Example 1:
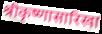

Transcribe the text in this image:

श्रीकृष्णासारिखा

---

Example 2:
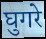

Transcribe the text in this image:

घुगरे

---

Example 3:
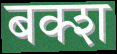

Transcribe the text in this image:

बक्श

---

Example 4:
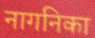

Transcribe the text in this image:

नागनिका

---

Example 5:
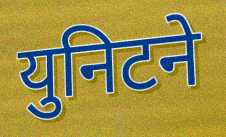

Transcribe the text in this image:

युनिटने